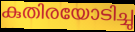
കുതിരയോടിച്ചു